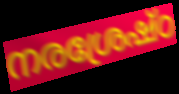
നരശ്രേഷ്ഠ